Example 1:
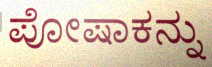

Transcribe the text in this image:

ಪೋಷಾಕನ್ನು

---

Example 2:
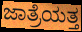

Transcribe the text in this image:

ಜಾತ್ರೆಯತ್ತ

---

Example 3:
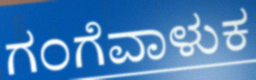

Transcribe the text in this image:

ಗಂಗೆವಾಳುಕ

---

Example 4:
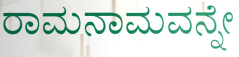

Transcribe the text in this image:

ರಾಮನಾಮವನ್ನೇ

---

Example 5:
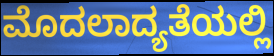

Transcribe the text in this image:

ಮೊದಲಾದ್ಯತೆಯಲ್ಲಿ